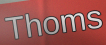
Thoms